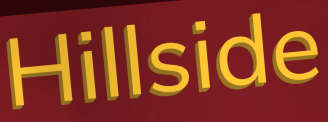
Hillside